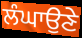
ਲੰਘਾਉਣੇ